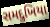
સમદુખિયા